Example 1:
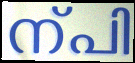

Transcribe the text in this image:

ന്പി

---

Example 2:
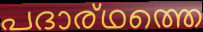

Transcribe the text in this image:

പദാര്ഥത്തെ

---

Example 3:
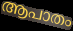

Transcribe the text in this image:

ആപാതം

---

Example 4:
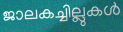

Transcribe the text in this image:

ജാലകച്ചില്ലുകൾ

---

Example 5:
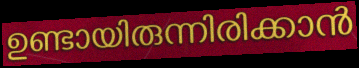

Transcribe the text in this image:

ഉണ്ടായിരുന്നിരിക്കാൻ